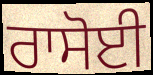
ਰਾਸੋਈ